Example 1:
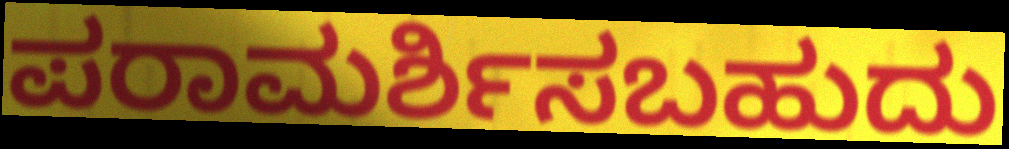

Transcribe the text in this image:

ಪರಾಮರ್ಶಿಸಬಹುದು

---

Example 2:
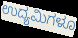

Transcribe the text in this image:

ಉದ್ಯಮಿಗಳೂ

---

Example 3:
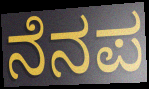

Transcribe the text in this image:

ನೆನಪ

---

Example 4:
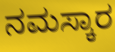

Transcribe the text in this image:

ನಮಸ್ಕಾರ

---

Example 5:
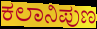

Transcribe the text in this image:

ಕಲಾನಿಪುಣ